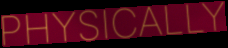
PHYSICALLY